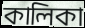
কালিকা